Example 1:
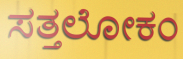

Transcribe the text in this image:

ಸತ್ತಲೋಕಂ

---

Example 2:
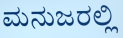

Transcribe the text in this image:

ಮನುಜರಲ್ಲಿ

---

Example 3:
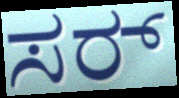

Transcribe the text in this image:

ಸರ‍್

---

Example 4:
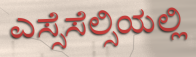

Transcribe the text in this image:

ಎಸ್ಸೆಸೆಲ್ಸಿಯಲ್ಲಿ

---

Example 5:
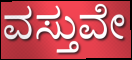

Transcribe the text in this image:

ವಸ್ತುವೇ